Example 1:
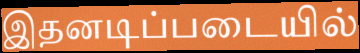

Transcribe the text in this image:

இதனடிப்படையில்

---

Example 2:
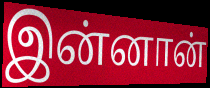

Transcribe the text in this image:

இன்னான்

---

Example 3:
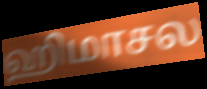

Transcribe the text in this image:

ஹிமாசல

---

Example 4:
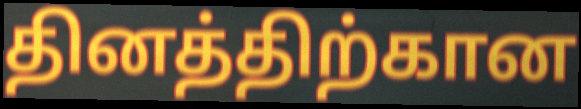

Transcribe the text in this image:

தினத்திற்கான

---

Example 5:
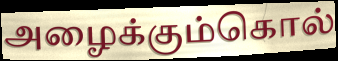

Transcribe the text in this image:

அழைக்கும்கொல்